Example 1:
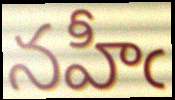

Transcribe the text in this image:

నహీఁ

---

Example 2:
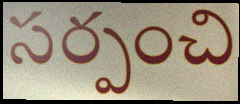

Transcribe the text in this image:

సర్పంచి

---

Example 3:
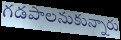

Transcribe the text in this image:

గడపాలనుకున్నారు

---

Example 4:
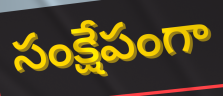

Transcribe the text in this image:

సంక్షేపంగా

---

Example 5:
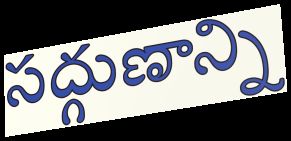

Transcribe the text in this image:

సద్గుణాన్ని